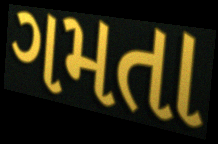
ગમતા